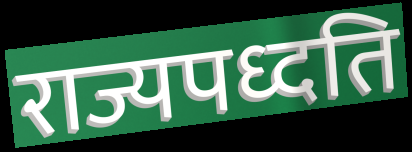
राज्यपध्दति